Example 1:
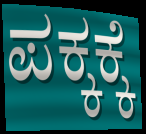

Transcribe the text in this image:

ಪಕ್ಕಕ್ಕೆ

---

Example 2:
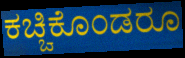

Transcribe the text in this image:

ಕಚ್ಚಿಕೊಂಡರೂ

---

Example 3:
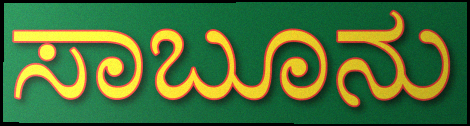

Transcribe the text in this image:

ಸಾಬೂನು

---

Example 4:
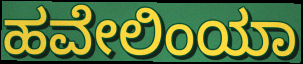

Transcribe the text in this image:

ಹವೇಲಿಂಯಾ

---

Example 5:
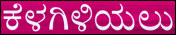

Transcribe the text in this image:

ಕೆಳಗಿಳಿಯಲು